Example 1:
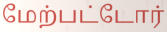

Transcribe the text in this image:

மேற்பட்டோர்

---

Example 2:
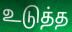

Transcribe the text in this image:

உடுத்த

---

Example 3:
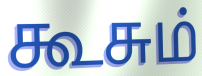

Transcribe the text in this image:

கூசும்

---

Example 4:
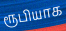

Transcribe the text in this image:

ரூபியாக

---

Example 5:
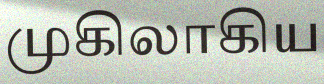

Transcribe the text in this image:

முகிலாகிய